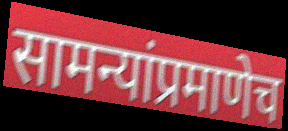
सामन्यांप्रमाणेच